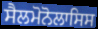
ਸੈਲਮੋਨੋਲਾਸਿਸ